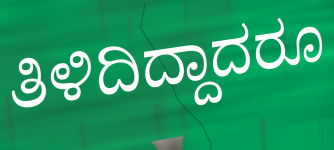
ತಿಳಿದಿದ್ದಾದರೂ